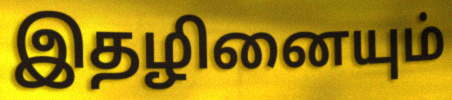
இதழினையும்